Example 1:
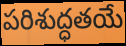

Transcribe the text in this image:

పరిశుద్ధతయే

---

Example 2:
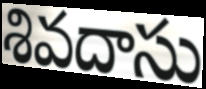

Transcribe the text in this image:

శివదాసు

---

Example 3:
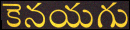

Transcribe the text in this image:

కెనయగు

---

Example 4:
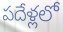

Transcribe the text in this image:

పదేళ్లలో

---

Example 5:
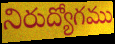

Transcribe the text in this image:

నిరుద్యోగము